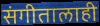
संगीतालाही